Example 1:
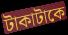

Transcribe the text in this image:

টাকাটাকে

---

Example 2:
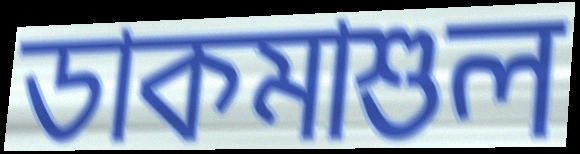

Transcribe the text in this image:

ডাকমাশুল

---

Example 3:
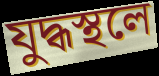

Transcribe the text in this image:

যুদ্ধস্থলে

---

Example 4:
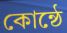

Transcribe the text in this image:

কোন্ঠে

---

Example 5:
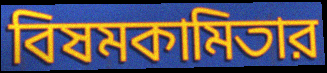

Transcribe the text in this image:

বিষমকামিতার